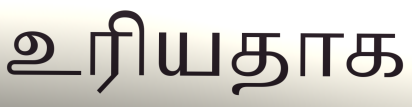
உரியதாக